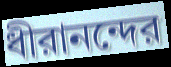
ধীরানন্দের